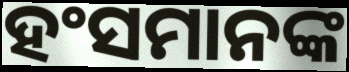
ହଂସମାନଙ୍କ